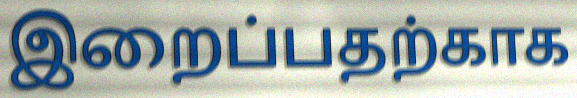
இறைப்பதற்காக